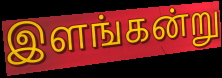
இளங்கன்று